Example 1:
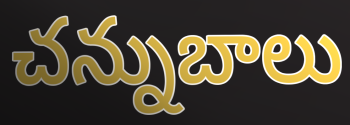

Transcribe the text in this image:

చన్నుబాలు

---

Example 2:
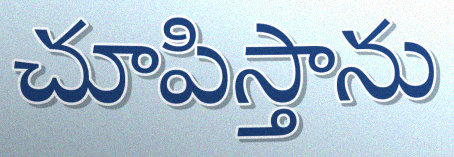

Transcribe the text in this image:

చూపిస్తాను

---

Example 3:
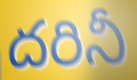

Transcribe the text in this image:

దరినీ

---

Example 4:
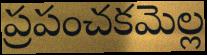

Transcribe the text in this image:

ప్రపంచకమెల్ల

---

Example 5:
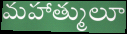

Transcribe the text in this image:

మహాత్ములూ